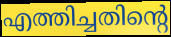
എത്തിച്ചതിന്റെ